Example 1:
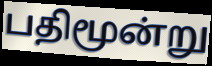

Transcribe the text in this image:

பதிமூன்று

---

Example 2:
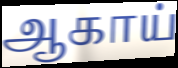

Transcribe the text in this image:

ஆகாய்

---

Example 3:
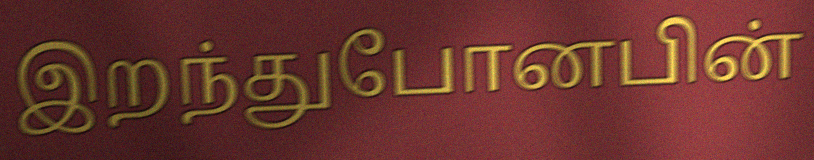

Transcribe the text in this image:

இறந்துபோனபின்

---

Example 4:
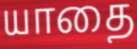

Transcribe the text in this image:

யாதை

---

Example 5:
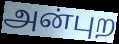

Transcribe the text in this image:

அன்புற